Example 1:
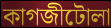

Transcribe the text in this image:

কাগজীটোলা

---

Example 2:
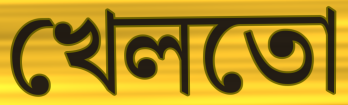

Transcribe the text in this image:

খেলতো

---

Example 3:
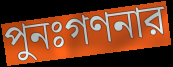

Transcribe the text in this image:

পুনঃগণনার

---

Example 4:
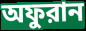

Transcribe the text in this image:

অফুরান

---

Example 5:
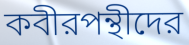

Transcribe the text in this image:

কবীরপন্থীদের